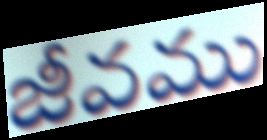
జీవము